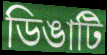
ডিঙাটি